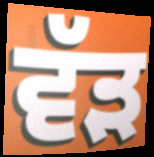
ਵੱੜ